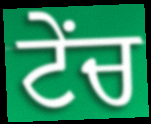
ਟੇਂਚ